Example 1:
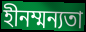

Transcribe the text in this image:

হীনম্মন্যতা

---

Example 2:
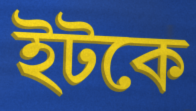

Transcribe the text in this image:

ইটকে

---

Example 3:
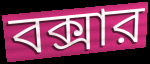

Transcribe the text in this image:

বক্সার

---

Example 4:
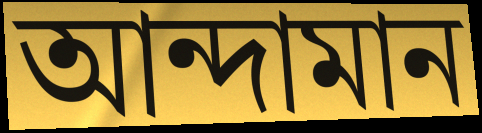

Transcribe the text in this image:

আন্দামান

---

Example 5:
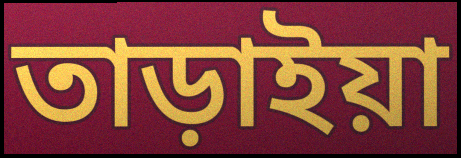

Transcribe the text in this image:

তাড়াইয়া